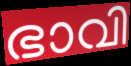
ഭാവി